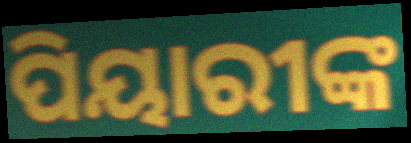
ପିୟାରୀଙ୍କ